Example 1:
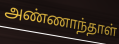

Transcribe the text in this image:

அண்ணாந்தாள்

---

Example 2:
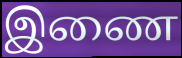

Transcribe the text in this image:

இணை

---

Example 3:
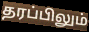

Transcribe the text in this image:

தரப்பிலும்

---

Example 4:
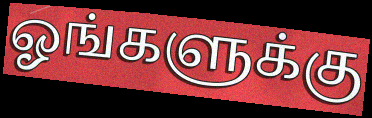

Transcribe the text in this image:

ஓங்களுக்கு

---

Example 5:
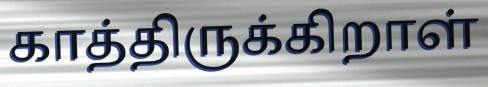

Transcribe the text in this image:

காத்திருக்கிறாள்